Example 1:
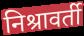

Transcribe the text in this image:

निश्रावर्ती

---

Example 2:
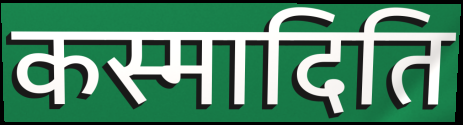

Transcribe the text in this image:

कस्मादिति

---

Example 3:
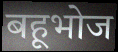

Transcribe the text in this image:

बहूभोज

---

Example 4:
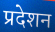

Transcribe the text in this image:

प्रदेशन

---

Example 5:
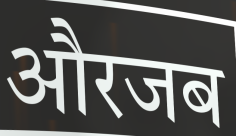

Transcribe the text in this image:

औरजब